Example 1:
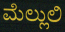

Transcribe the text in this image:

ಮೆಲ್ಲುಲಿ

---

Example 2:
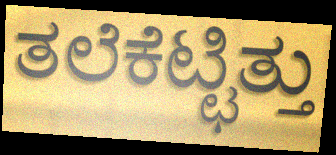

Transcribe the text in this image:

ತಲೆಕೆಟ್ಟಿತ್ತು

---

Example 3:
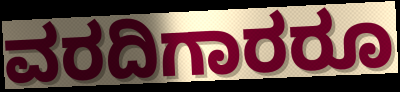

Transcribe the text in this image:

ವರದಿಗಾರರೂ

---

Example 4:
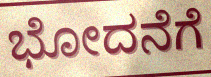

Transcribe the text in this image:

ಭೋದನೆಗೆ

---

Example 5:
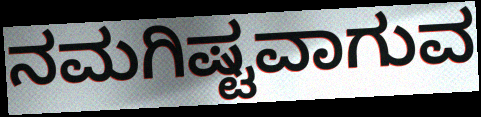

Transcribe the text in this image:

ನಮಗಿಷ್ಟವಾಗುವ